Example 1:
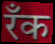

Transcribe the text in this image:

रँक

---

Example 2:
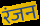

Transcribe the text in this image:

रंजन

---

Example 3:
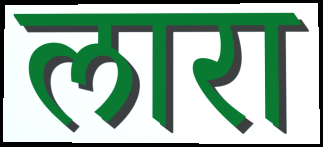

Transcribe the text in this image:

लारा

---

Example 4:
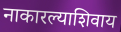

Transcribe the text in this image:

नाकारल्याशिवाय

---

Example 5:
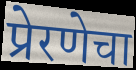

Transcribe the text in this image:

प्रेरणेचा